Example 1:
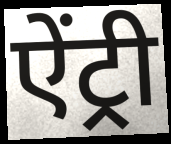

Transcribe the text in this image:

ऐंट्री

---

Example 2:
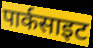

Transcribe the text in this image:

पार्कसाइट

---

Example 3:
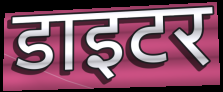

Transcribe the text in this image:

डाइटर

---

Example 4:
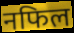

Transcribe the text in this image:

नफिल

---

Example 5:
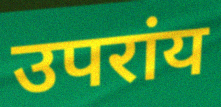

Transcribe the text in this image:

उपरांय